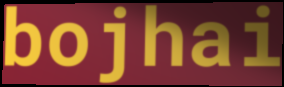
bojhai